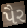
પૈર